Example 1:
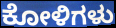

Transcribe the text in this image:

ಕೋಳಿಗಳು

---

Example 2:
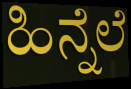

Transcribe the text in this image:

ಹಿನ್ನೆಲೆ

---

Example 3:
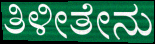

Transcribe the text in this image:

ತಿಳೀತೇನು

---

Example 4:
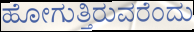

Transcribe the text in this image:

ಹೋಗುತ್ತಿರುವರೆಂದು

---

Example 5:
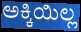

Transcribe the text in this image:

ಅಕ್ಕಿಯಿಲ್ಲ